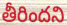
తీరిందని